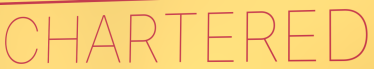
CHARTERED